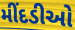
મીંદડીઓ